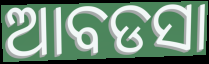
ଆବଡସା